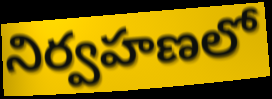
నిర్వహణలో